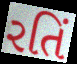
રતિં